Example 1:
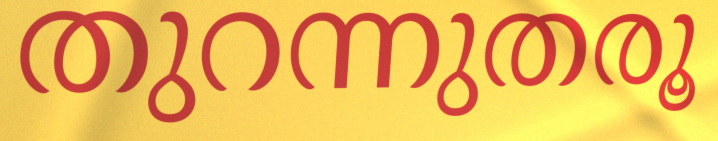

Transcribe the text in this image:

തുറന്നുതരൂ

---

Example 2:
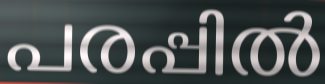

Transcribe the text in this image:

പരപ്പിൽ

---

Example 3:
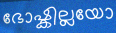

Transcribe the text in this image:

ഭോഷ്കില്ലയോ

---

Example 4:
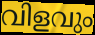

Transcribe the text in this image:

വിളവും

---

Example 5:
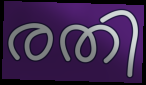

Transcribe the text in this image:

രതി